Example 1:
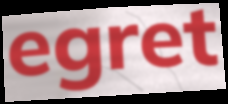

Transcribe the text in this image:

egret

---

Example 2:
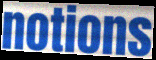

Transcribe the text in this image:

notions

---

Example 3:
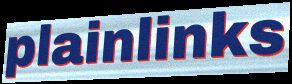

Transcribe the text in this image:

plainlinks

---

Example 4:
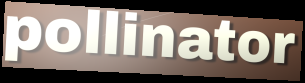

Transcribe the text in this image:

pollinator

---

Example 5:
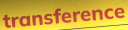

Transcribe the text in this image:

transference